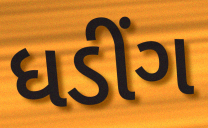
ધડીંગ